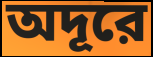
অদূরে